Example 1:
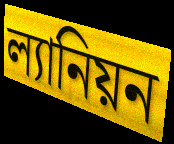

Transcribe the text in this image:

ল্যানিয়ন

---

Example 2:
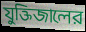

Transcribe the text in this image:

যুক্তিজালের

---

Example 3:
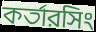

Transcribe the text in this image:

কর্তারসিং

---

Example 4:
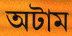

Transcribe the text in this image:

অটাম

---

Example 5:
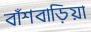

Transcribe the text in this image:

বাঁশবাড়িয়া